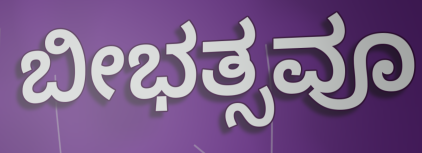
ಬೀಭತ್ಸವೂ